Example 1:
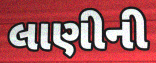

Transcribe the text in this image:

લાણીની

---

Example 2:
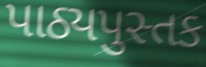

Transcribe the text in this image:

પાઠ્યપુસ્તક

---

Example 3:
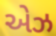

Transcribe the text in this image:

એઝ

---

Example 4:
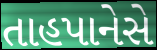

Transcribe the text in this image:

તાહપાનેસે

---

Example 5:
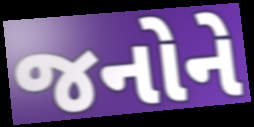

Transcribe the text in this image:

જનોને